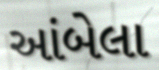
આંબેલા